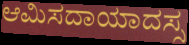
ಆಮಿಸದಾಯಾದಸ್ಸ